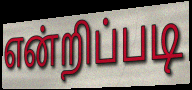
என்றிப்படி